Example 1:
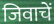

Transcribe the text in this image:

जिवाचें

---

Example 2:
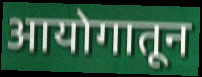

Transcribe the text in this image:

आयोगातून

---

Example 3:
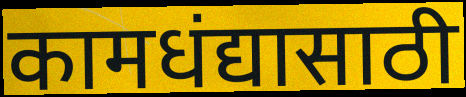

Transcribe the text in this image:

कामधंद्यासाठी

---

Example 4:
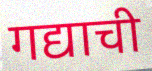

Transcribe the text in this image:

गद्याची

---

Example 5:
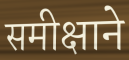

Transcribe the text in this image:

समीक्षाने